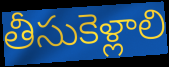
తీసుకెళ్లాలి